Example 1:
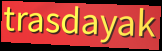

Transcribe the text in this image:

trasdayak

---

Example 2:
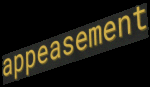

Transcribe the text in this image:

appeasement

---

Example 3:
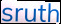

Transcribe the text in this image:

sruth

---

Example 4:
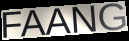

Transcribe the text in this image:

FAANG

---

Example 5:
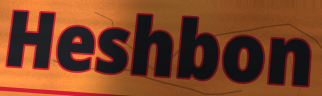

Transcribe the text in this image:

Heshbon